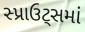
સ્પ્રાઉટ્સમાં